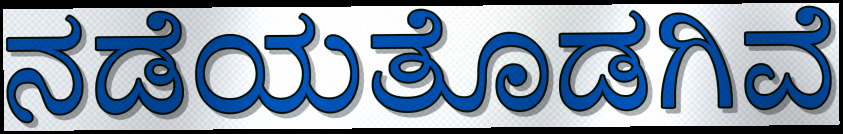
ನಡೆಯತೊಡಗಿವೆ